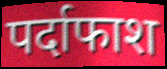
पर्दाफाश